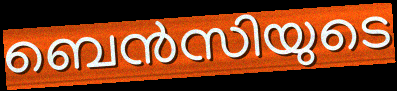
ബെൻസിയുടെ